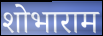
शोभाराम